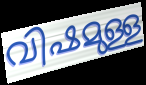
വിഷമുള്ള